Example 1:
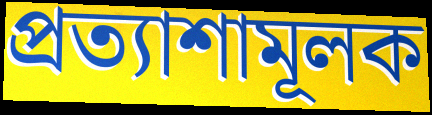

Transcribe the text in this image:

প্রত্যাশামূলক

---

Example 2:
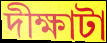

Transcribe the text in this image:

দীক্ষাটা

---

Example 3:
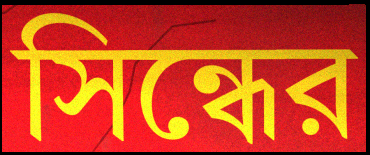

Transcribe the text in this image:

সিন্ধের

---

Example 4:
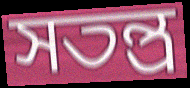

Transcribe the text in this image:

সতন্ত্র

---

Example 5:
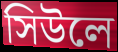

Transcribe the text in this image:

সিউলে